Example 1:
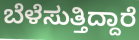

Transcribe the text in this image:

ಬೆಳೆಸುತ್ತಿದ್ದಾರೆ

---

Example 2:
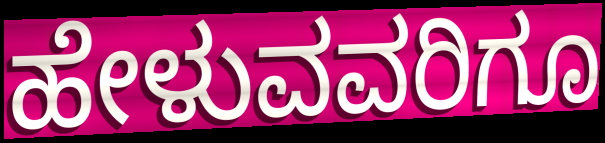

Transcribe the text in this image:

ಹೇಳುವವರಿಗೂ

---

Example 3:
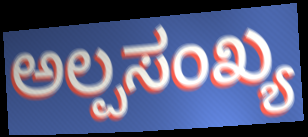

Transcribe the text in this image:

ಅಲ್ಪಸಂಖ್ಯ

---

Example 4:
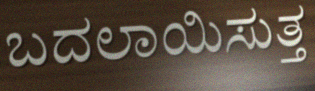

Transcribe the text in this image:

ಬದಲಾಯಿಸುತ್ತ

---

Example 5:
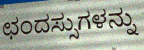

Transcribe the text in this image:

ಛಂದಸ್ಸುಗಳನ್ನು